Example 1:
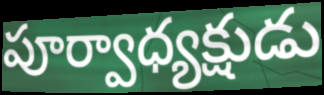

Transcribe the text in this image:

పూర్వాధ్యక్షుడు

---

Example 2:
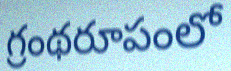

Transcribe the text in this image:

గ్రంథరూపంలో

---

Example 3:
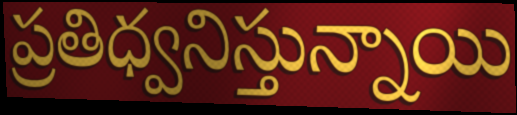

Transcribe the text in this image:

ప్రతిధ్వనిస్తున్నాయి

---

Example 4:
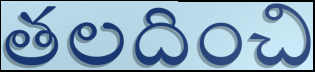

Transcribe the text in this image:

తలదించి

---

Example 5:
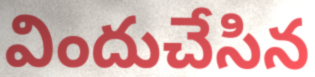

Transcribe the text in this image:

విందుచేసిన